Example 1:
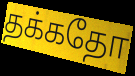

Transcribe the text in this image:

தக்கதோ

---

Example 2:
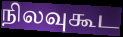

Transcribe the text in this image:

நிலவுகூட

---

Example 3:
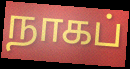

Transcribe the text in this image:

நாகப்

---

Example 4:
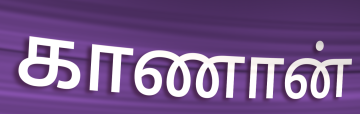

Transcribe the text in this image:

காணான்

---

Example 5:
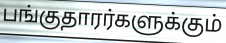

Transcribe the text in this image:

பங்குதாரர்களுக்கும்